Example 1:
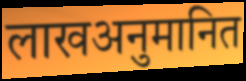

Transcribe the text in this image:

लाखअनुमानित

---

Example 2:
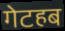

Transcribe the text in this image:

गेटहब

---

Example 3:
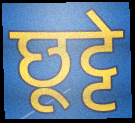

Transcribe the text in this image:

छूट्टे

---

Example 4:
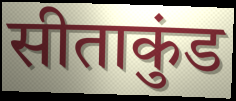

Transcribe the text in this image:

सीताकुंड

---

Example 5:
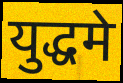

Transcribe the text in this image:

युद्धमे